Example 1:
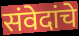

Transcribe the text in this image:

संवेदांचे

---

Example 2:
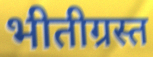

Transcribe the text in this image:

भीतीग्रस्त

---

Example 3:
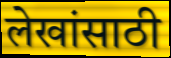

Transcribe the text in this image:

लेखांसाठी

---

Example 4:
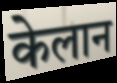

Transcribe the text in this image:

केलान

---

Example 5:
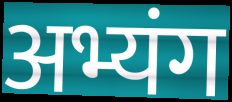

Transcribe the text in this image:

अभ्यंग